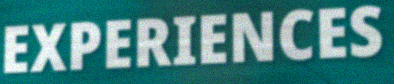
EXPERIENCES